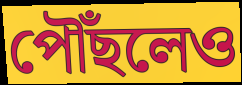
পৌঁছলেও